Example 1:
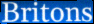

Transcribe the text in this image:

Britons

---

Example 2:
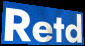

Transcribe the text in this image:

Retd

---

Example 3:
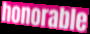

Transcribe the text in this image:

honorable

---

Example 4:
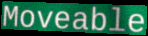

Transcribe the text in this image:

Moveable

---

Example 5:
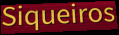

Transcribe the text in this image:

Siqueiros